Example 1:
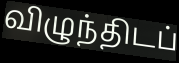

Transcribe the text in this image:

விழுந்திடப்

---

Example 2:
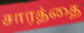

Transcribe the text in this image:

சாரத்தை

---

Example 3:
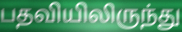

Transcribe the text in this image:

பதவியிலிருந்து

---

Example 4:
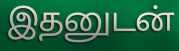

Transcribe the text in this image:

இதனுடன்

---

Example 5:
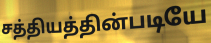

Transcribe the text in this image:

சத்தியத்தின்படியே